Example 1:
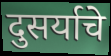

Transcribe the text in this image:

दुसर्याचे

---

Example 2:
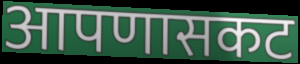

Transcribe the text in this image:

आपणासकट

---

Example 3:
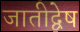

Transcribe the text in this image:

जातीद्वेष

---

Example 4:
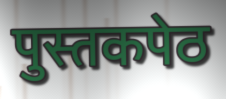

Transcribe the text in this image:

पुस्तकपेठ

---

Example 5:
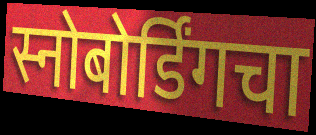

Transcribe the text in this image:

स्नोबोर्डिंगचा